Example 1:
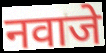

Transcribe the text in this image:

नवाजे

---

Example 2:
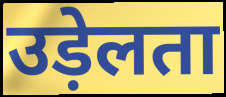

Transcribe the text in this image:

उड़ेलता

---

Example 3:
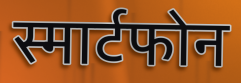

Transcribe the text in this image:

स्मार्टफोन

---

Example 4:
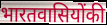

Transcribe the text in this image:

भारतवासियोंकी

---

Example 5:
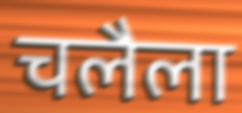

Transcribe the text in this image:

चलैला